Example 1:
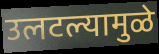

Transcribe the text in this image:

उलटल्यामुळे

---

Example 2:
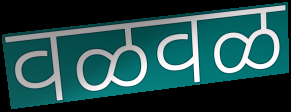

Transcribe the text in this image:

वळवळ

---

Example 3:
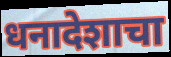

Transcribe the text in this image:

धनादेशाचा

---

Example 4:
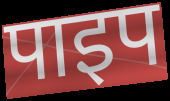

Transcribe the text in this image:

पाइप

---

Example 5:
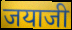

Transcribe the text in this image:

जयाजी